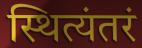
स्थित्यंतरं